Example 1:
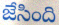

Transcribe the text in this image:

జేసింది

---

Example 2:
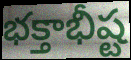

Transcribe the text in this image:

భక్తాభీష్ట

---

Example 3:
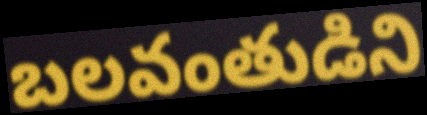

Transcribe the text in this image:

బలవంతుడిని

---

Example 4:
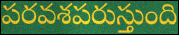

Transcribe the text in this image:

పరవశపరుస్తుంది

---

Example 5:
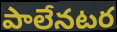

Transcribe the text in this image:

పాలేనటర